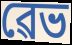
ৱেভ